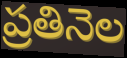
ప్రతినెల